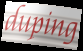
duping